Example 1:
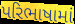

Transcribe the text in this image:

પરિભાષામાં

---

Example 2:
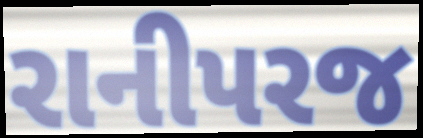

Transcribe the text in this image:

રાનીપરજ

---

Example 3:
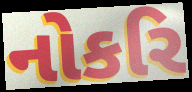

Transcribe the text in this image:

નોકરિ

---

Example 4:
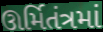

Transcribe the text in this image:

ઊર્મિતંત્રમાં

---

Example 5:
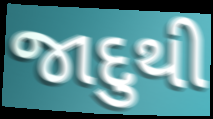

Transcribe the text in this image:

જાદુથી